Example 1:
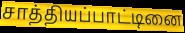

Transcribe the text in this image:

சாத்தியப்பாட்டினை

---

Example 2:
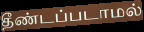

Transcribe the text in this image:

தீண்டப்படாமல்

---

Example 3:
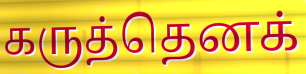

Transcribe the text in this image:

கருத்தெனக்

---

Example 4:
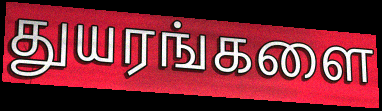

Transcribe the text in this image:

துயரங்களை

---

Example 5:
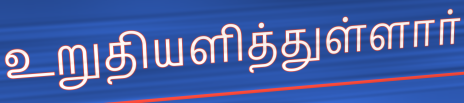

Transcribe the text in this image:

உறுதியளித்துள்ளார்